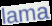
lama